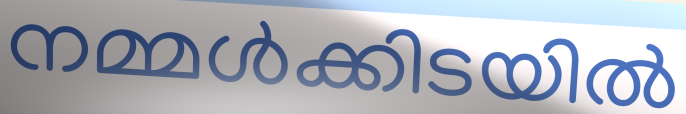
നമ്മൾക്കിടയിൽ